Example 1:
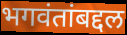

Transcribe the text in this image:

भगवंतांबद्दल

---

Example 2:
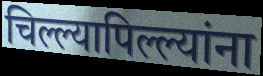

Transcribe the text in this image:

चिल्ल्यापिल्ल्यांना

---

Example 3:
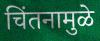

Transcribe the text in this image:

चिंतनामुळे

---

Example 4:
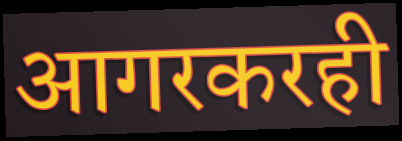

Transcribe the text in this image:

आगरकरही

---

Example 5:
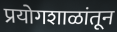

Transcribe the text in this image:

प्रयोगशाळांतून